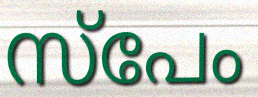
സ്പേം